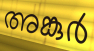
അങ്കുർ